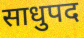
साधुपद